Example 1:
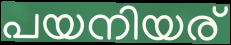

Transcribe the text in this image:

പയനിയര്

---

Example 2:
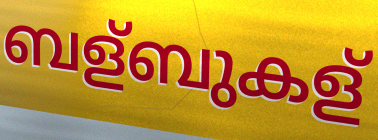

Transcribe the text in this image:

ബള്ബുകള്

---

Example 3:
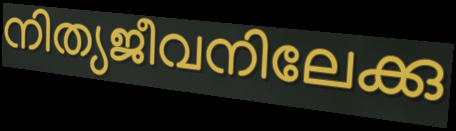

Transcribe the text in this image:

നിത്യജീവനിലേക്കു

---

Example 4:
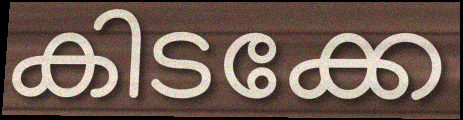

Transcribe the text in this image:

കിടക്കേ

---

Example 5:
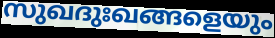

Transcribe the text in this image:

സുഖദുഃഖങ്ങളെയും